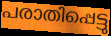
പരാതിപ്പെട്ടു